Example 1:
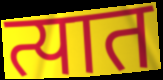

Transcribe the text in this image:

त्यात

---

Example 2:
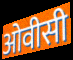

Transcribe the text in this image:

ओवीसी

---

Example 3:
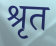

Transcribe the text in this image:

श्रृत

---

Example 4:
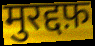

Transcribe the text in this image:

मुरद्दफ़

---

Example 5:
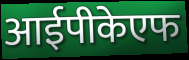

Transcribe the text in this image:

आईपीकेएफ